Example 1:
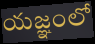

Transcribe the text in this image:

యజ్ఞంలో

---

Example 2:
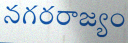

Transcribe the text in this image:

నగరరాజ్యం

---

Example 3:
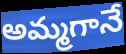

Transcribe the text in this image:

అమ్మగానే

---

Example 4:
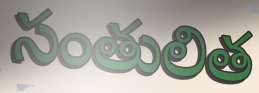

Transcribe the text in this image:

సంతులిత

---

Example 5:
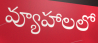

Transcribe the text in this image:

వ్యూహాలలో